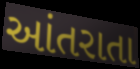
આંતરાતા